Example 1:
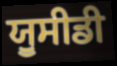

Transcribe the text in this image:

ਯੂਸੀਡੀ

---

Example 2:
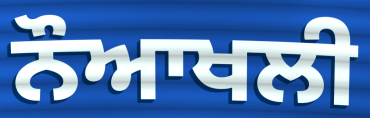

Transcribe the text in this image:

ਨੌਆਖਲੀ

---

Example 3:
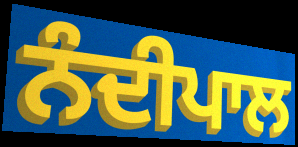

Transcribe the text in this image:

ਨੰਦੀਪਾਲ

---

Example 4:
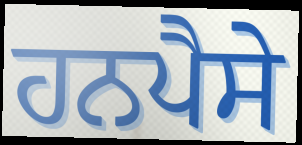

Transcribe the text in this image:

ਹਨਪੈਸੇ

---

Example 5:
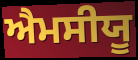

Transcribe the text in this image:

ਐਮਸੀਯੂ